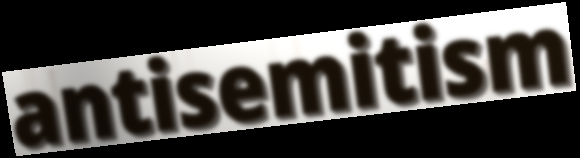
antisemitism